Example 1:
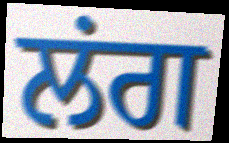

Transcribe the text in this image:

ਲਂਗ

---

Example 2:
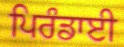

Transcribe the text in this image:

ਪਿਰੰਡਾਈ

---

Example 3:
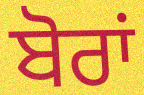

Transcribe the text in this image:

ਬੋਰਾਂ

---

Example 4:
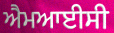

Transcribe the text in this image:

ਐਮਆਈਸੀ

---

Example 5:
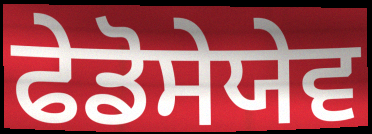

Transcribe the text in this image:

ਫੇਡੋਸੇਯੇਵ